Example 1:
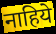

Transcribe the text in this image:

नाहिये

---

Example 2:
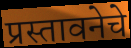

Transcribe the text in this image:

प्रस्तावनेचे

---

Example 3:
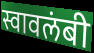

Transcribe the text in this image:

स्वावलंबी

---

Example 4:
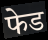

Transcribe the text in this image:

फेड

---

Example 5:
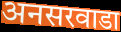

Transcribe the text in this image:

अनसरवाडा